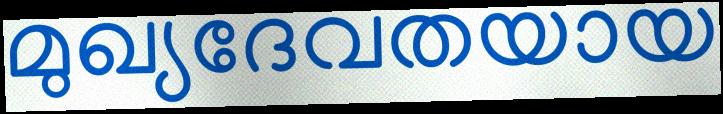
മുഖ്യദേവതയായ